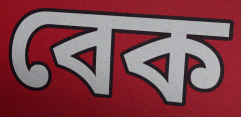
বেক